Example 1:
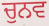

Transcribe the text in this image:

ਚੁਨਵ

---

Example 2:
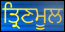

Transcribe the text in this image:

ਤ੍ਰਿਣਮੂਲ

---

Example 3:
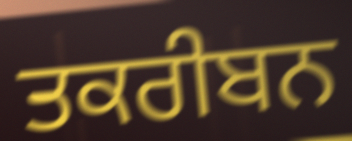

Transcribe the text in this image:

ਤਕਰੀਬਨ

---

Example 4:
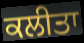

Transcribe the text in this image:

ਕਲੀਤਾ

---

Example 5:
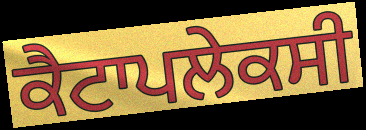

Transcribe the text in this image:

ਕੈਟਾਪਲੇਕਸੀ